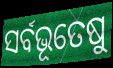
ସର୍ବଭୂତେଷୁ